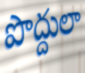
పొద్దులా